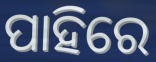
ପାହିରେ